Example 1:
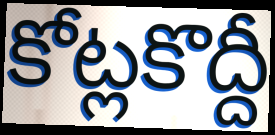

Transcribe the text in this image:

కోట్లకొద్దీ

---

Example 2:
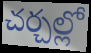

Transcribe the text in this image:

చర్చల్లో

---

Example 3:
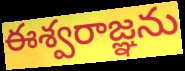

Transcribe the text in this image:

ఈశ్వరాజ్ఞను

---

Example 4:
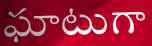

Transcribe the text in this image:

ఘాటుగా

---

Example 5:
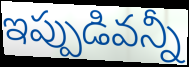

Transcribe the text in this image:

ఇప్పుడివన్నీ